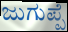
ಜುಗುಪ್ಪೆ